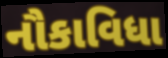
નૌકાવિધા